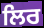
ਲਿਰ